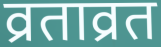
व्रताव्रत